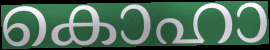
കൊഹാ